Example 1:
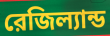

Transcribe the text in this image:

রেজিল্যান্ড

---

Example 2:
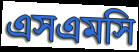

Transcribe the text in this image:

এসএমসি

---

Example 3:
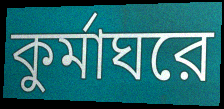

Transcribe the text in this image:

কুর্মাঘরে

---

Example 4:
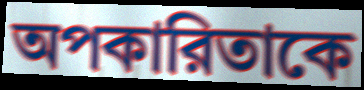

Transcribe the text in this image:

অপকারিতাকে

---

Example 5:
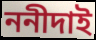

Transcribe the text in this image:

ননীদাই